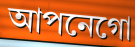
আপনেগো